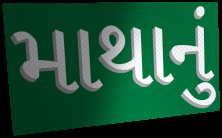
માથાનું